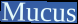
Mucus